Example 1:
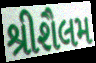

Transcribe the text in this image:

શ્રીશૈલમ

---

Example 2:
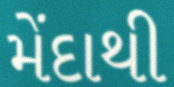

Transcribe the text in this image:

મેંદાથી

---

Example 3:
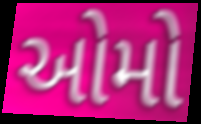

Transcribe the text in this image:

ઓમો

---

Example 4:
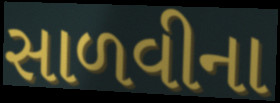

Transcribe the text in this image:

સાળવીના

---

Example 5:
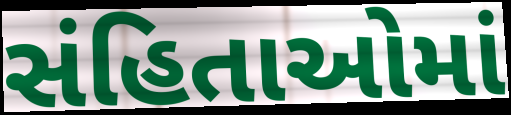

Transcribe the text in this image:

સંહિતાઓમાં